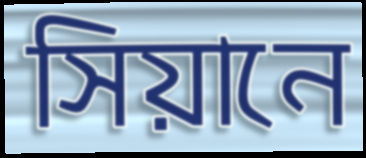
সিয়ানে